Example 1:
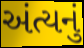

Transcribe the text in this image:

અંત્યનું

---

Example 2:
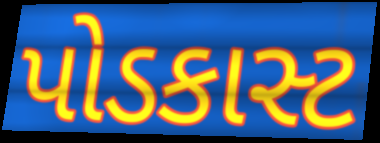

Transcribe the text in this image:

પોડકાસ્ટ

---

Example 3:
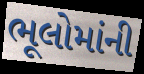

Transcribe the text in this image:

ભૂલોમાંની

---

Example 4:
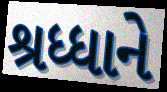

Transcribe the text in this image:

શ્રધ્ધાને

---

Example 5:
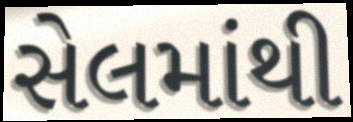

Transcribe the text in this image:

સેલમાંથી